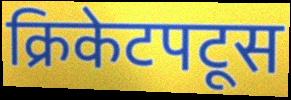
क्रिकेटपटूस